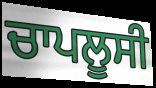
ਚਾਪਲੂਸੀ